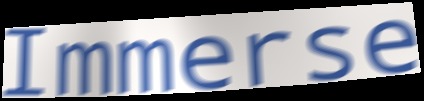
Immerse